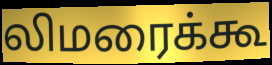
லிமரைக்கூ